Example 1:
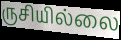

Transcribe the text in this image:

ருசியில்லை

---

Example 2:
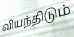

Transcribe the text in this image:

வியந்திடும்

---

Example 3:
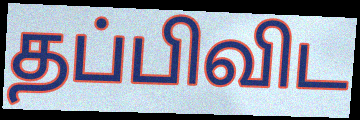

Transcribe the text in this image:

தப்பிவிட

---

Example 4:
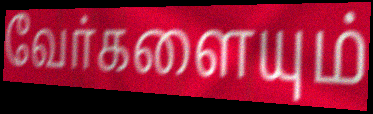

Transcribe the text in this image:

வேர்களையும்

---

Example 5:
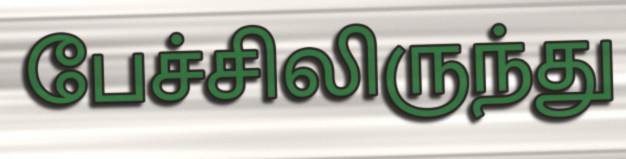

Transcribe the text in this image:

பேச்சிலிருந்து